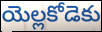
యెల్లకోడెకు